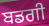
ਬਡਗੀ